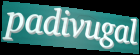
padivugal